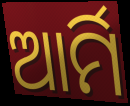
ଆର୍ମି